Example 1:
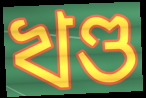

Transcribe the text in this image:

খণ্ড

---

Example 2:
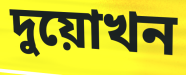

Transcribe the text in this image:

দুয়োখন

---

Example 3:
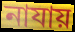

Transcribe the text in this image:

নাযায়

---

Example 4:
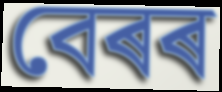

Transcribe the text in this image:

বেৰৰ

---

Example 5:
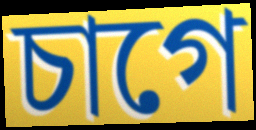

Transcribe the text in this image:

চাগে